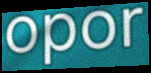
opor